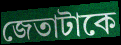
জেতাটাকে